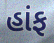
હાંફ